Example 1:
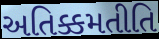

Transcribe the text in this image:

અતિક્કમતીતિ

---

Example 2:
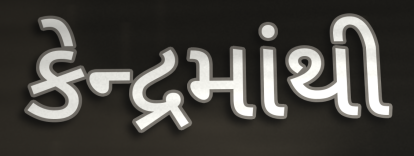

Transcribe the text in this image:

કેન્દ્રમાંથી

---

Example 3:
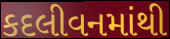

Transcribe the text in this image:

કદલીવનમાંથી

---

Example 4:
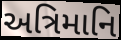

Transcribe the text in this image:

અત્રિમાનિ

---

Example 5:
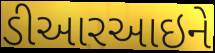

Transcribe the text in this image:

ડીઆરઆઇને